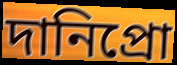
দানিপ্রো